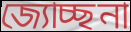
জ্যোচ্ছনা